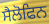
ਸੈਲੋਫਿਨ